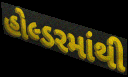
હોલ્ડરમાંથી